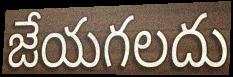
జేయగలదు